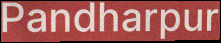
Pandharpur